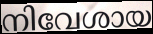
നിവേശായ